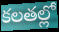
కలతల్లో